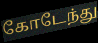
கோடேந்து